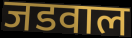
जडवाल